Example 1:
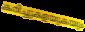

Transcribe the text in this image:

കരിച്ചുകളയുകയും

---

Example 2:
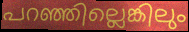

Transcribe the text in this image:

പറഞ്ഞില്ലെങ്കിലും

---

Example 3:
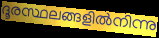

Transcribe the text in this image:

ദൂരസ്ഥലങ്ങളിൽനിന്നു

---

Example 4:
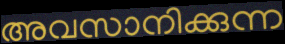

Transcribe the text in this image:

അവസാനിക്കുന്ന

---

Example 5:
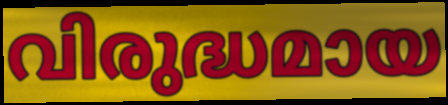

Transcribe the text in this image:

വിരുദ്ധമായ